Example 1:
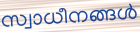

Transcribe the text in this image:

സ്വാധീനങ്ങൾ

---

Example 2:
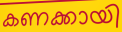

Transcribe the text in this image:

കണക്കായി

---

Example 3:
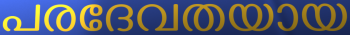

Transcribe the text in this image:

പരദേവതയായ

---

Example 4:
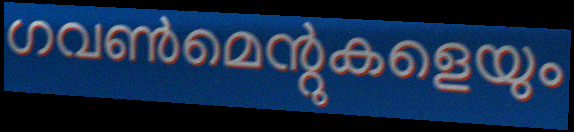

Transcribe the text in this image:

ഗവൺമെന്റുകളെയും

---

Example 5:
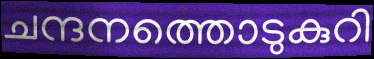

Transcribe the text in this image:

ചന്ദനത്തൊടുകുറി